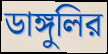
ডাঙ্গুলির